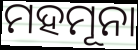
ମହମୂନା